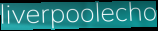
liverpoolecho